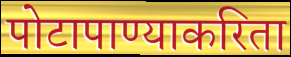
पोटापाण्याकरिता